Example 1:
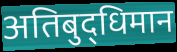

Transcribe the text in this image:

अतिबुद्धिमान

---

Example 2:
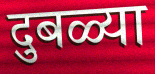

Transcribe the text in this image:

दुबळ्या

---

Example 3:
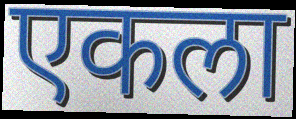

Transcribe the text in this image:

एकला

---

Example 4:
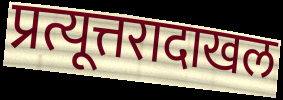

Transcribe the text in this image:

प्रत्यूत्तरादाखल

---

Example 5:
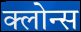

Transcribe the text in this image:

क्लोन्स